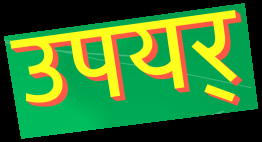
उपयर्